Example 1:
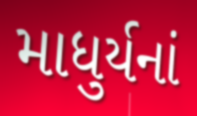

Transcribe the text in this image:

માધુર્યનાં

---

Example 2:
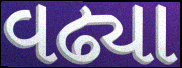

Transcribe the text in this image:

વઢ્યા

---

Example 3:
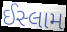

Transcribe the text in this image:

ઈસ્લામ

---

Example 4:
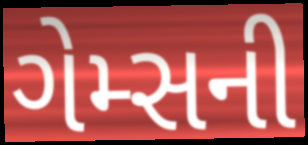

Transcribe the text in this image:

ગેમ્સની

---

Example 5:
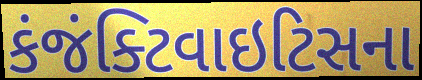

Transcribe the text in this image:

કંજંક્ટિવાઇટિસના